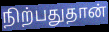
நிற்பதுதான்